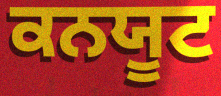
ਕਨਯੂਟ